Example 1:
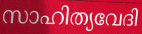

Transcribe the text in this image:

സാഹിത്യവേദി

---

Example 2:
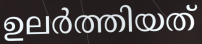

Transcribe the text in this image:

ഉലർത്തിയത്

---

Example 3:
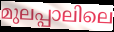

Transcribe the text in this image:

മുലപ്പാലിലെ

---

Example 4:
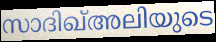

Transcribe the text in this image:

സാദിഖ്അലിയുടെ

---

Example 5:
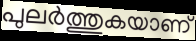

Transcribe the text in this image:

പുലർത്തുകയാണ്